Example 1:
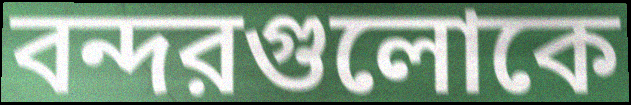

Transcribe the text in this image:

বন্দরগুলোকে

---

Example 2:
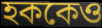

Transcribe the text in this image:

হককেও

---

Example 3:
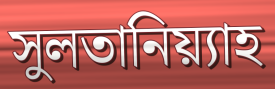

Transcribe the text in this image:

সুলতানিয়্যাহ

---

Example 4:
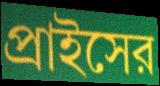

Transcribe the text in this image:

প্রাইসের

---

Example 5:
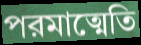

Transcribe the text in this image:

পরমাত্মেতি